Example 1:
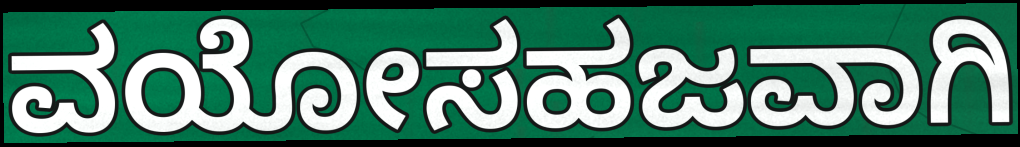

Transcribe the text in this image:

ವಯೋಸಹಜವಾಗಿ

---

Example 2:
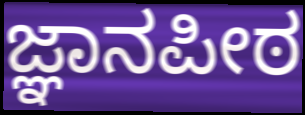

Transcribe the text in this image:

ಜ್ಞಾನಪೀಠ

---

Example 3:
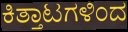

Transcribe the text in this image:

ಕಿತ್ತಾಟಗಳಿಂದ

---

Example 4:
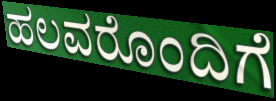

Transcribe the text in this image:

ಹಲವರೊಂದಿಗೆ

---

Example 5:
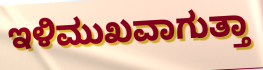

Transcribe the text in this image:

ಇಳಿಮುಖವಾಗುತ್ತಾ